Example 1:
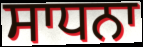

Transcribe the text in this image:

ਸਾਧਨਾ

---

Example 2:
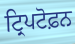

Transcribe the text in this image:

ਟ੍ਰਿਪਟੋਫ਼ਨ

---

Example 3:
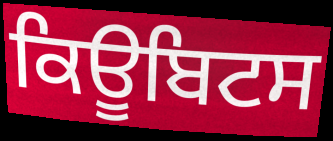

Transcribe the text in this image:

ਕਿਊਬਿਟਸ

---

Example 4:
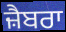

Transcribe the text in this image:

ਜ਼ੈਬਰਾ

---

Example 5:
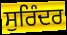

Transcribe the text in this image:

ਸੁਰਿੰਦਰ